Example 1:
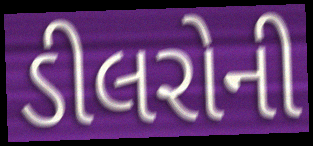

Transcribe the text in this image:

ડીલરોની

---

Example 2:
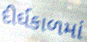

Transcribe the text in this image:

દીર્ઘકાળમાં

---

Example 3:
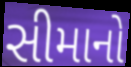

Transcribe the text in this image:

સીમાનો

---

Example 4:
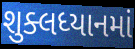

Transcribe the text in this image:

શુક્લધ્યાનમાં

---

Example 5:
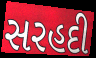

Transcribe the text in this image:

સરહદી